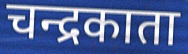
चन्द्रकाता